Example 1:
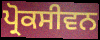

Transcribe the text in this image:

ਪ੍ਰੋਕਸੀਵਨ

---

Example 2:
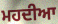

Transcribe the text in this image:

ਮਹਦੀਆ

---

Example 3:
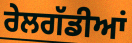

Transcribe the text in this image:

ਰੇਲਗੱਡੀਆਂ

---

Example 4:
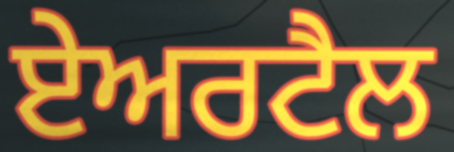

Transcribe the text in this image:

ਏਅਰਟੈਲ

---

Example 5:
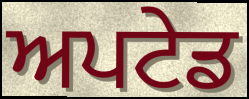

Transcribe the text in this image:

ਅਪਟੇਡ